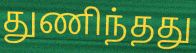
துணிந்தது